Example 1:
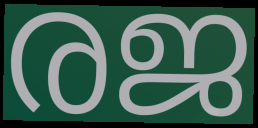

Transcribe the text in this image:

രജ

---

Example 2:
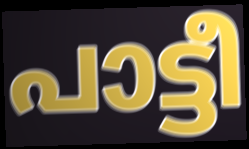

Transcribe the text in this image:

പാട്ടീ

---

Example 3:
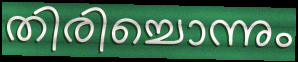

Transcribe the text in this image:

തിരിച്ചൊന്നും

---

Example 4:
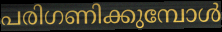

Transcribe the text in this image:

പരിഗണിക്കുമ്പോൾ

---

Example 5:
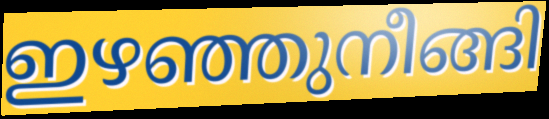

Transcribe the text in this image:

ഇഴഞ്ഞുനീങ്ങി